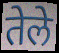
तेले